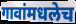
गावांमधलेच